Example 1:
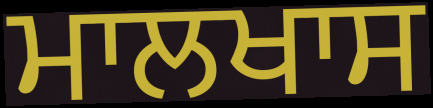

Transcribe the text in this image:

ਮਾਲਖਾਸ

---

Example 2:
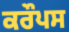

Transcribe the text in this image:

ਕਰੌਪਸ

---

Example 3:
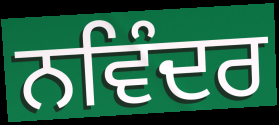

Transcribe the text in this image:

ਨਵਿੰਦਰ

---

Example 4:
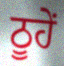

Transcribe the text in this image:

ਠੂਹੇਂ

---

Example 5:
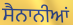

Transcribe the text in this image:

ਸੈਨਾਨੀਆਂ